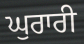
ਘੁਰਾਰੀ